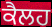
ਕੈਲਹ